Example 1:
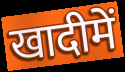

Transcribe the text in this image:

खादीमें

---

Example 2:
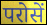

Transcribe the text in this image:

परोसें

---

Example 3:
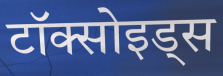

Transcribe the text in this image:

टॉक्सोइड्स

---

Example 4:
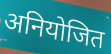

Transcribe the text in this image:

अनियोजित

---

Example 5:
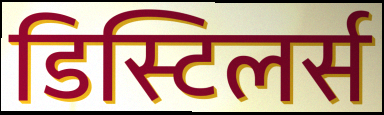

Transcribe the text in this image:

डिस्टिलर्स